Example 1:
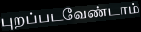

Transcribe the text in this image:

புறப்படவேண்டாம்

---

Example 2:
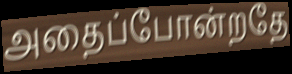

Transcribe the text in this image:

அதைப்போன்றதே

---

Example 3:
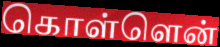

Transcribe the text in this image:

கொள்ளென்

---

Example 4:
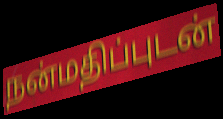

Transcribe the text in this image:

நன்மதிப்புடன்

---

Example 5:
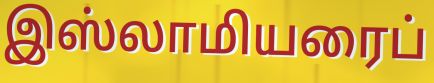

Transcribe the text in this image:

இஸ்லாமியரைப்